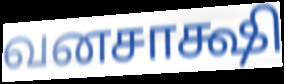
வனசாக்ஷி